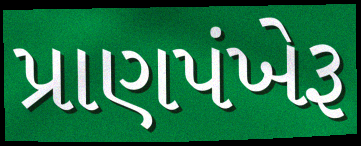
પ્રાણપંખેરૂ